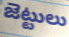
జెట్టులు